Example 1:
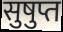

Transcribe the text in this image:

सुषुप्त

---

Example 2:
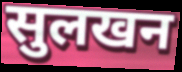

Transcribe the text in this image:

सुलखन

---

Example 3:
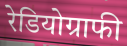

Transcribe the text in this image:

रेडियोग्राफी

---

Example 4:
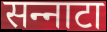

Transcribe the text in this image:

सन्‍नाटा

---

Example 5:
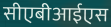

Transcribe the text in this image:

सीएबीआईएस